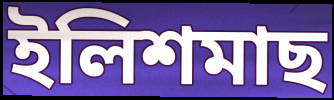
ইলিশমাছ